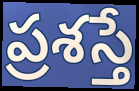
ప్రశస్తే